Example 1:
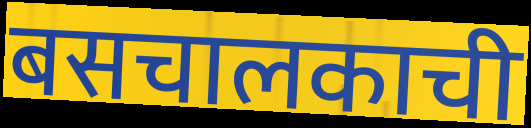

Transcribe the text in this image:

बसचालकाची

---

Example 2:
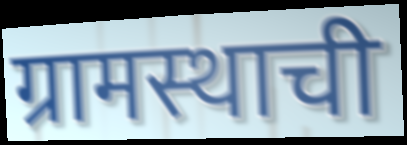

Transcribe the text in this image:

ग्रामस्थाची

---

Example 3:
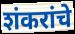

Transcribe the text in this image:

शंकरांचे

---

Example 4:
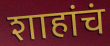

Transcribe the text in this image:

शाहांचं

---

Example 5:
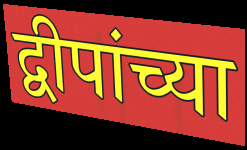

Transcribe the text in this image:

द्वीपांच्या